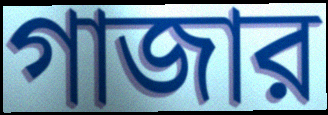
গাজার